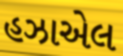
હઝાએલ